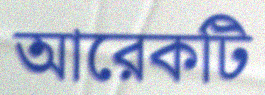
আরেকটি